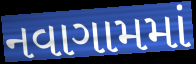
નવાગામમાં